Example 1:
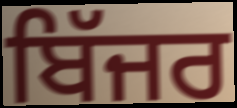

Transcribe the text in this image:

ਬਿੱਜਰ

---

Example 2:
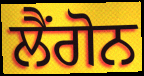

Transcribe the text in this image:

ਲੈਂਗੋਨ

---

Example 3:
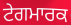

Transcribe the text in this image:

ਟੇਗਮਾਰਕ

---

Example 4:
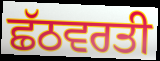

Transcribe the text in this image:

ਛੱਠਵਰਤੀ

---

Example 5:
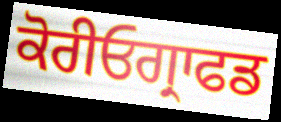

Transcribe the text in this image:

ਕੋਰੀਓਗ੍ਰਾਫਡ